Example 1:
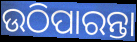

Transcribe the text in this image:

ଉଠିପାରନ୍ତା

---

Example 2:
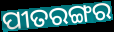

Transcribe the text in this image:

ପୀତରଙ୍ଗର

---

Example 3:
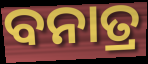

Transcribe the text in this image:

ବନାତ୍ର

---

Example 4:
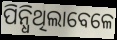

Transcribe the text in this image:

ପିନ୍ଧିଥିଲାବେଳେ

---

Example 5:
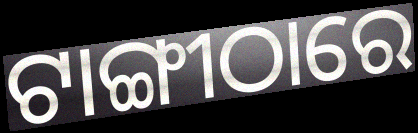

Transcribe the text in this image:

ଟାଙ୍ଗୀଠାରେ